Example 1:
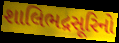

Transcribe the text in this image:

શાલિભદ્રસૂરિનો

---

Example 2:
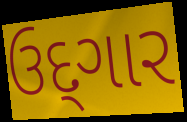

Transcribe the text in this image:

ઉદ્‌ગાર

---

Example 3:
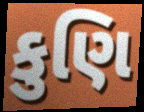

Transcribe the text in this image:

કુણિ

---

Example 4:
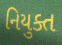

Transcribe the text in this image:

નિયુક્ત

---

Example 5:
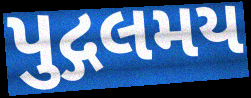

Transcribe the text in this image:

પુદ્ગલમય